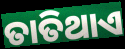
ତାତିଥାଏ